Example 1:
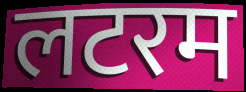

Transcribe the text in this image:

लटरम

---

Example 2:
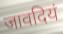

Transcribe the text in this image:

जावदियं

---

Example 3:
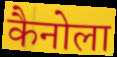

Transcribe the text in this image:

कैनोला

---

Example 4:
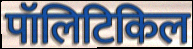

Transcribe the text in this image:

पॉलिटिकिल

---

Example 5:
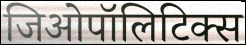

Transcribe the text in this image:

जिओपॉलिटिक्स